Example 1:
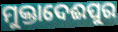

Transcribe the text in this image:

ମୁକ୍ତାଦେଈପୁର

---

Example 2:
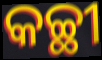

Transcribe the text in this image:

କଚ୍ଛୀ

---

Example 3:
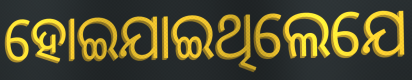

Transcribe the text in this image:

ହୋଇଯାଇଥିଲେଯେ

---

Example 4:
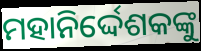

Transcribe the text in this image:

ମହାନିର୍ଦ୍ଦେଶକଙ୍କୁ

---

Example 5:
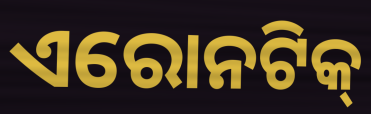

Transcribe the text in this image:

ଏରୋନଟିକ୍